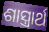
ଶାସ୍ତ୍ରାର୍ଥ